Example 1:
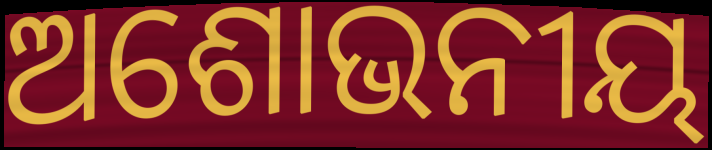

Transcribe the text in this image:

ଅଶୋଭନୀୟ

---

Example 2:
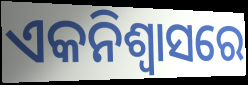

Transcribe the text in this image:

ଏକନିଶ୍ୱାସରେ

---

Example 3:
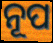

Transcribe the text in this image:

ନୂପ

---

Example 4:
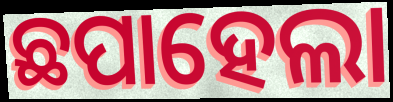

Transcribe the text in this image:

ଛପାହେଲା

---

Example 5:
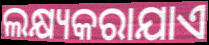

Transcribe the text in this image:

ଲକ୍ଷ୍ୟକରାଯାଏ